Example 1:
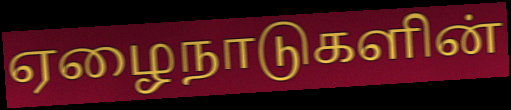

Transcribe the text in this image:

ஏழைநாடுகளின்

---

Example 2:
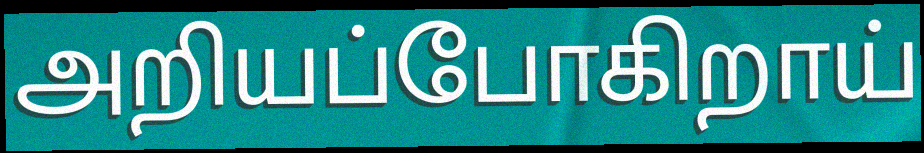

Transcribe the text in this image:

அறியப்போகிறாய்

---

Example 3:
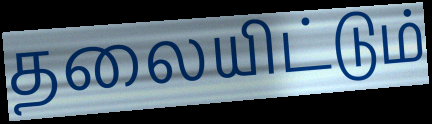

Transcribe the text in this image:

தலையிட்டும்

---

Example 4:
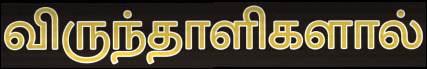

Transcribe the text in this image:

விருந்தாளிகளால்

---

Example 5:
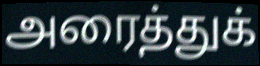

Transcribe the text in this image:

அரைத்துக்